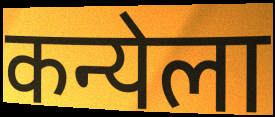
कन्येला